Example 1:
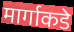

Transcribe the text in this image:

मार्गाकडे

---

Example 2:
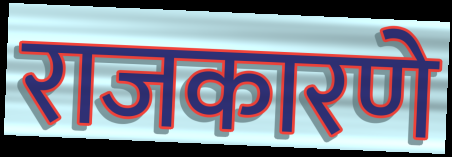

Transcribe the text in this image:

राजकारणे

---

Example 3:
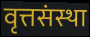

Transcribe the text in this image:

वृत्तसंस्था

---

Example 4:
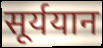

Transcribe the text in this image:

सूर्ययान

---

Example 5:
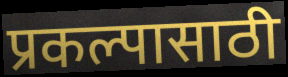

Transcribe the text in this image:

प्रकल्पासाठी